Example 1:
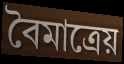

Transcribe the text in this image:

বৈমাত্রেয়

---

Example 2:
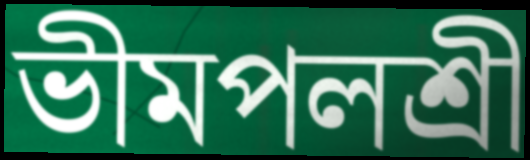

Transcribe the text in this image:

ভীমপলশ্রী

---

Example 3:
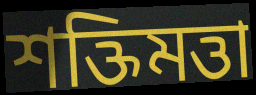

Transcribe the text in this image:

শক্তিমত্তা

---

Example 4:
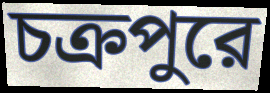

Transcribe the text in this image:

চক্রপুরে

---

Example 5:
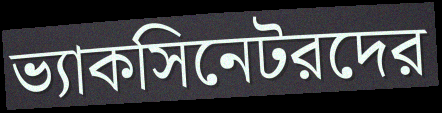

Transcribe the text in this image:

ভ্যাকসিনেটরদের